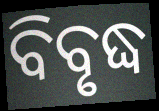
ବିବୃଦ୍ଧ